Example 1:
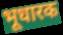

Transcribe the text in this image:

भूधारक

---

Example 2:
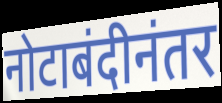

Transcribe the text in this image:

नोटाबंदीनंतर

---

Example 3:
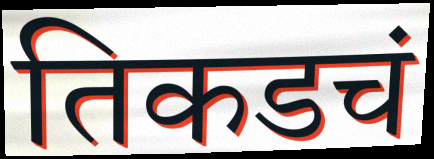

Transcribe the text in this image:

तिकडचं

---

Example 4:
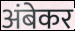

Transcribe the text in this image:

अंबेकर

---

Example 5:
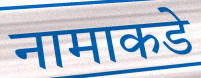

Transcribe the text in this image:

नामाकडे